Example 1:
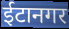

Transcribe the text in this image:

ईटानगर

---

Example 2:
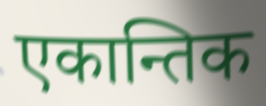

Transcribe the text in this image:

एकान्तिक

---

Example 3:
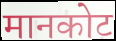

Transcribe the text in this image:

मानकोट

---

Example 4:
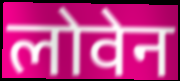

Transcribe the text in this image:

लोवेन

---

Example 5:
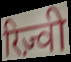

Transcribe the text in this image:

रिज़्वी